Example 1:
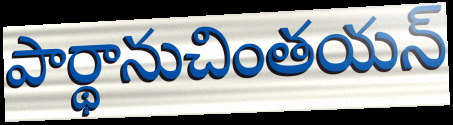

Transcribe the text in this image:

పార్థానుచింతయన్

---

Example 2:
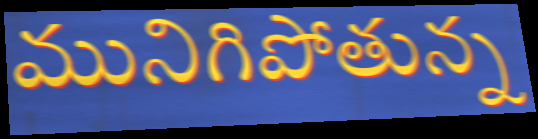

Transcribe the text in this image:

మునిగిపోతున్న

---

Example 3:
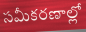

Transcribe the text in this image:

సమీకరణాల్లో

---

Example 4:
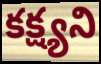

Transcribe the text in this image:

కక్ష్యని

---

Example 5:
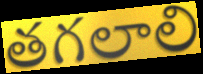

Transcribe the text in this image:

తగలాలి